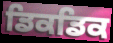
ਡਿਕਡਿਕ